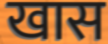
खास